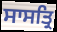
ਸਾਸਤ੍ਰਿ